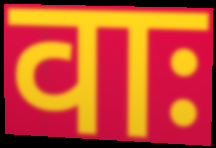
वाः